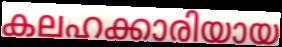
കലഹക്കാരിയായ